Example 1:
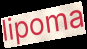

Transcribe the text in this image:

lipoma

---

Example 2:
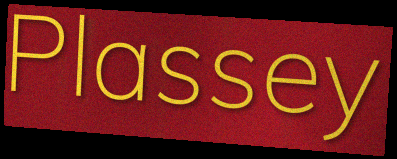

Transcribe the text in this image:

Plassey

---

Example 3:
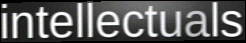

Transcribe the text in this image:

intellectuals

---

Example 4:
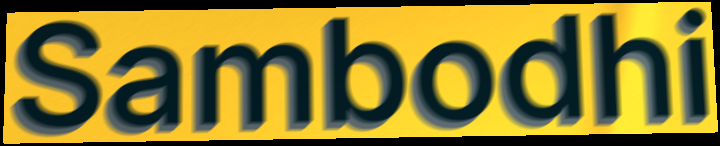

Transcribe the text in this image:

Sambodhi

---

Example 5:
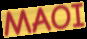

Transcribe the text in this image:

MAOI